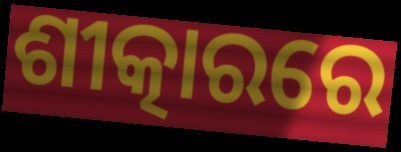
ଶୀତ୍କାରରେ